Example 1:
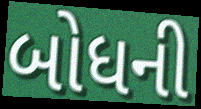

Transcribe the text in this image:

બોધની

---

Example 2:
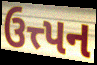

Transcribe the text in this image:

ઉત્ત્પન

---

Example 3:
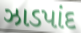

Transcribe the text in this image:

ઝાડપાંદ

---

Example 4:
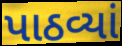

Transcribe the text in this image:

પાઠવ્યાં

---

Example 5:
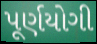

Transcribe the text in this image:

પૂર્ણયોગી